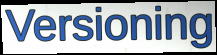
Versioning